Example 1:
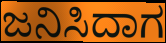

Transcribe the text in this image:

ಜನಿಸಿದಾಗ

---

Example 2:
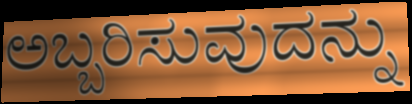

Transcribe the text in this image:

ಅಬ್ಬರಿಸುವುದನ್ನು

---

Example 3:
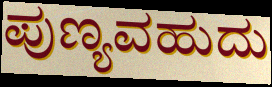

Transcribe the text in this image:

ಪುಣ್ಯವಹುದು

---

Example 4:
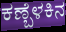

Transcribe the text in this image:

ಕಣ್ಬೆಳಕಿನ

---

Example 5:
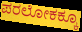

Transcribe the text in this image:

ಪರಲೋಕಕ್ಕೂ